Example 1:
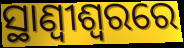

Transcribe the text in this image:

ସ୍ଥାଣ୍ୱୀଶ୍ୱରରେ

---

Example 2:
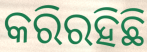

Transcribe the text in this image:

କରିରହିଛି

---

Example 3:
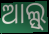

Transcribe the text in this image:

ଆଲ୍ସ୍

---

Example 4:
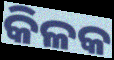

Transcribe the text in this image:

କିଳକ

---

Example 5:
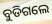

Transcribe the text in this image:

ବୁଡିଗଲେ